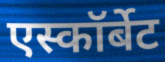
एस्कॉर्बेट